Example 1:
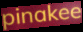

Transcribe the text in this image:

pinakee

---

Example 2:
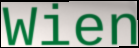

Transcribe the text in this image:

Wien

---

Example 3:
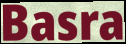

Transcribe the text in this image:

Basra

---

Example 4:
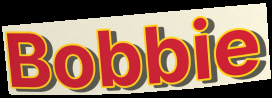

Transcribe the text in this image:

Bobbie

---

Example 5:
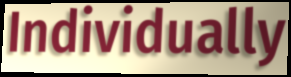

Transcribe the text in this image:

Individually